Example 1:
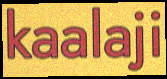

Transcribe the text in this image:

kaalaji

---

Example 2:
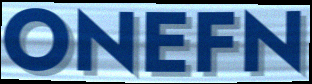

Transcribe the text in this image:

ONEFN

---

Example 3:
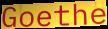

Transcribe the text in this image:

Goethe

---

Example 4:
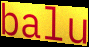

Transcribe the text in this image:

balu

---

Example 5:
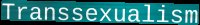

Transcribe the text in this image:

Transsexualism